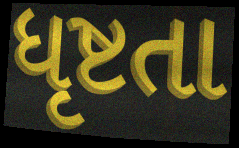
ધૃષ્ટતા